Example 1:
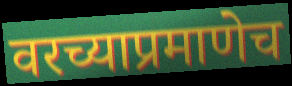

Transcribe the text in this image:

वरच्याप्रमाणेच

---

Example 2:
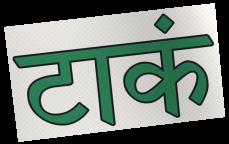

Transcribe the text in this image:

टाकं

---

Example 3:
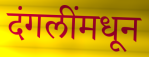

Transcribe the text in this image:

दंगलींमधून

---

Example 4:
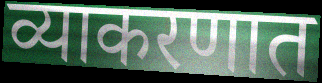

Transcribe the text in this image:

व्याकरणात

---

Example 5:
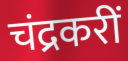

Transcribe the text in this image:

चंद्रकरीं